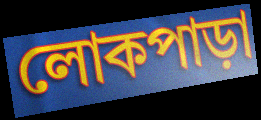
লোকপাড়া